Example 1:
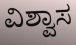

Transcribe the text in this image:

ವಿಶ್ವಾಸ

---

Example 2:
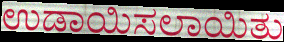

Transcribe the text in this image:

ಉಡಾಯಿಸಲಾಯಿತು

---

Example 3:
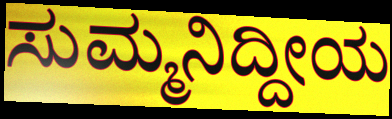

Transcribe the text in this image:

ಸುಮ್ಮನಿದ್ದೀಯ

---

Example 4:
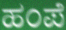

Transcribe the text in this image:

ಹಂಪೆ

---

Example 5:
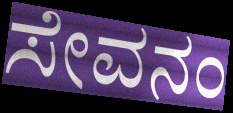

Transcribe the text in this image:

ಸೇವನಂ